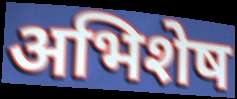
अभिशेष